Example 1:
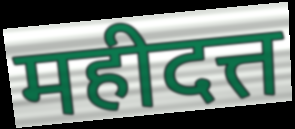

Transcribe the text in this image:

महीदत्त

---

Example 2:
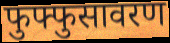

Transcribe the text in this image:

फुफ्फुसावरण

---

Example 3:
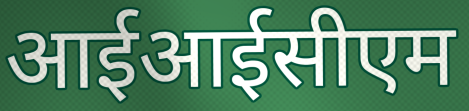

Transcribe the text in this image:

आईआईसीएम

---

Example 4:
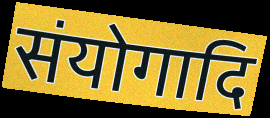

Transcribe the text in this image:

संयोगादि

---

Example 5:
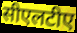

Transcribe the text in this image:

सीएलटीए